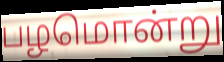
பழமொன்று